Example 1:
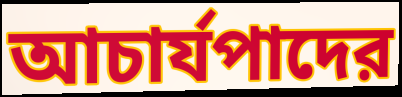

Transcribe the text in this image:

আচার্যপাদের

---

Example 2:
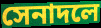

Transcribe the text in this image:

সেনাদলে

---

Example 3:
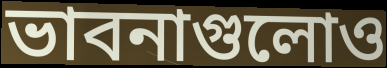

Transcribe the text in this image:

ভাবনাগুলোও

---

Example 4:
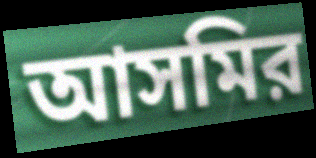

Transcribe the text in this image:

আসমির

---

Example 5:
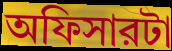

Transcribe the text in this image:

অফিসারটা